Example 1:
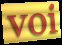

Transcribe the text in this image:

voi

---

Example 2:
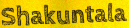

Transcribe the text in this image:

Shakuntala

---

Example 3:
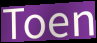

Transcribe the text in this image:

Toen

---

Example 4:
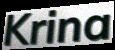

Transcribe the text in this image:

Krina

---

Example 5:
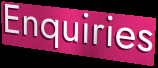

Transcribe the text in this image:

Enquiries